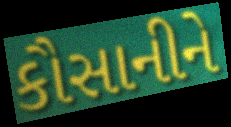
કૌસાનીને